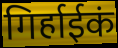
गिर्हाईकं